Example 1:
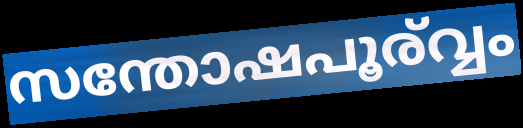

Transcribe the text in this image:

സന്തോഷപൂര്വ്വം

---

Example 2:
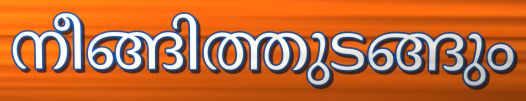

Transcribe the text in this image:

നീങ്ങിത്തുടങ്ങും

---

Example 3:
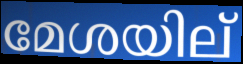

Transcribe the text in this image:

മേശയില്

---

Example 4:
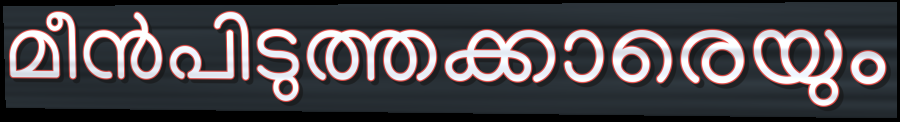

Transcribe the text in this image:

മീൻപിടുത്തക്കാരെയും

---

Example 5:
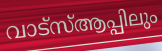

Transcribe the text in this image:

വാട്സ്ആപ്പിലും